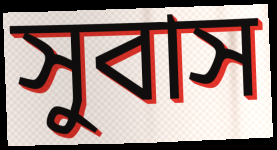
সুবাস